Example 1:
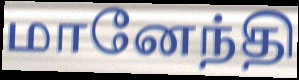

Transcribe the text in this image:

மானேந்தி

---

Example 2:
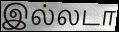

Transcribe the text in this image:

இல்லடா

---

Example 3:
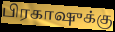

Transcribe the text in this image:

பிரகாஷுக்கு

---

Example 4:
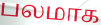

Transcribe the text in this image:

பலமாக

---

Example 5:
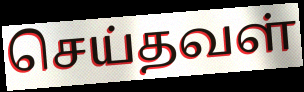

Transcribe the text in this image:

செய்தவள்